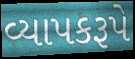
વ્યાપકરૂપે